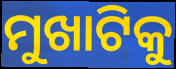
ମୁଖାଟିକୁ